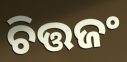
ଚିତ୍ତଜଂ